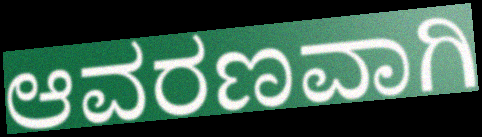
ಆವರಣವಾಗಿ